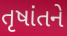
તૃષાંતને